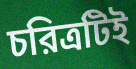
চরিত্রটিই